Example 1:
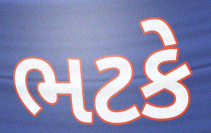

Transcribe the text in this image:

ભટકે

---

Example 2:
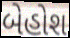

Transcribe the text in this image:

બેહોશ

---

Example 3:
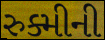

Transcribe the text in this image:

રુક્મીની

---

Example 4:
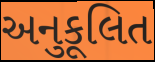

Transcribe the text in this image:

અનુકૂલિત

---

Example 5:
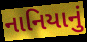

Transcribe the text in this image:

નાનિયાનું